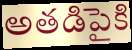
అతడిపైకి